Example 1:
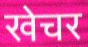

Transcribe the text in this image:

खेचर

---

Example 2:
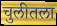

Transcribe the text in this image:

चुलीतला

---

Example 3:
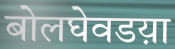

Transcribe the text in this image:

बोलघेवडय़ा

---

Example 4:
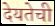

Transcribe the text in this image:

देयतेची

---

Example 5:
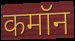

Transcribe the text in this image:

कमॉन